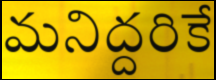
మనిద్దరికే